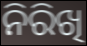
ନିରିଖି